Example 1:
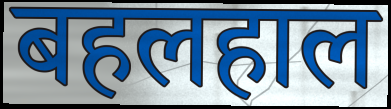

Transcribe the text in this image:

बहलहाल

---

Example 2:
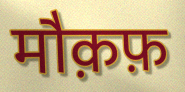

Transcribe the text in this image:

मौक़फ़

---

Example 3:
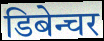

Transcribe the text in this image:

डिबेन्चर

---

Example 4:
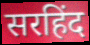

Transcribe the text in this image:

सरहिंद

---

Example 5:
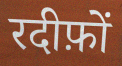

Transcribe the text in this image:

रदीफ़ों